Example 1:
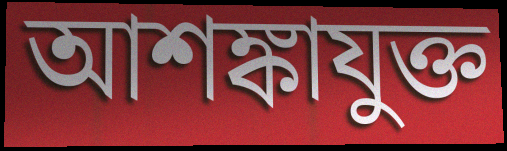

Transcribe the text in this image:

আশঙ্কাযুক্ত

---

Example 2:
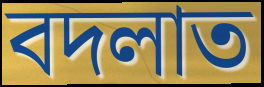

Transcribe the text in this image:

বদলাত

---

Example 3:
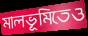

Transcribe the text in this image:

মালভূমিতেও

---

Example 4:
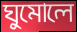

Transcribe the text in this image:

ঘুমোলে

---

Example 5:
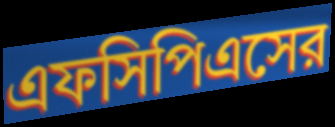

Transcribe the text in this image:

এফসিপিএসের